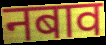
नबाव